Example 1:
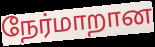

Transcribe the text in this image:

நேர்மாறான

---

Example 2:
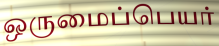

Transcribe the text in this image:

ஒருமைப்பெயர்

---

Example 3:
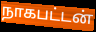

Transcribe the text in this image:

நாகபட்டன்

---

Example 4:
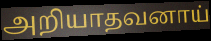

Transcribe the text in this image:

அறியாதவனாய்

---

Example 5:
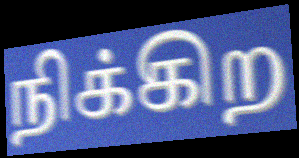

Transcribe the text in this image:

நிக்கிற